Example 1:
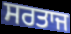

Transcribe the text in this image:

ਸਰਤਾਜ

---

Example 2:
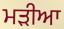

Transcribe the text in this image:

ਮੜੀਆ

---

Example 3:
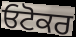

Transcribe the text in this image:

ਓਟੋਕਰ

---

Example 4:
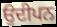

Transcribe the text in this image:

ਉਦੀਪਨ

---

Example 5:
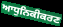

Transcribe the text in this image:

ਆਧੁਨਿਕੀਕਰਣ